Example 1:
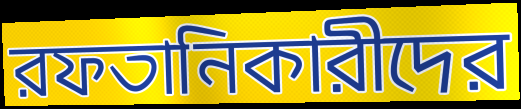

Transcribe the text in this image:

রফতানিকারীদের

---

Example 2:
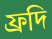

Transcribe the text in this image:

ফ্রদি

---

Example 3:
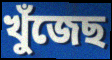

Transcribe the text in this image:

খুঁজেছ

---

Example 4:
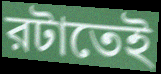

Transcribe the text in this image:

রটাতেই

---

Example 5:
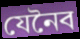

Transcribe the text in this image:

যেনৈব